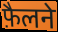
फ़ैलने